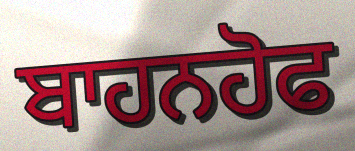
ਬਾਹਨਹੋਫ